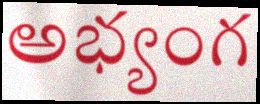
అభ్యంగ